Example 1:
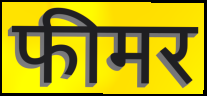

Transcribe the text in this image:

फीमर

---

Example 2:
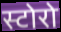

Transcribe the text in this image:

स्टोरो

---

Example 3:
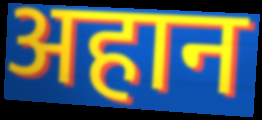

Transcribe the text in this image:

अहान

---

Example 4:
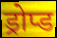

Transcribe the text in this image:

ड्रोप्ड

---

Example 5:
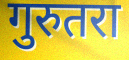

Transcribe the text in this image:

गुरुतरा